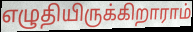
எழுதியிருக்கிறாராம்